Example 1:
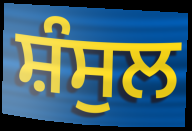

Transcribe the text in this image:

ਸ਼ੰਸੁਲ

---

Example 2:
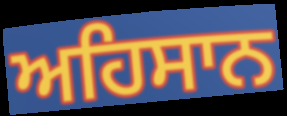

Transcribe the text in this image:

ਅਹਿਸਾਨ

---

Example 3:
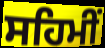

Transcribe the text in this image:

ਸਹਿਮੀਂ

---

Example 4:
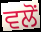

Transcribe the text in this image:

ਵਲੋੰ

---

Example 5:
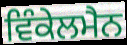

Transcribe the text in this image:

ਵਿੰਕੇਲਮੈਨ